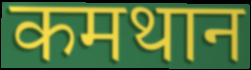
कमथान